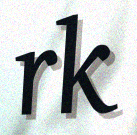
rk